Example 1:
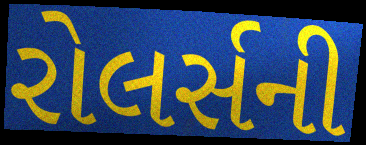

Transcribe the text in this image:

રોલર્સની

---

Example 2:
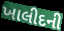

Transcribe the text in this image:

ખાલીદની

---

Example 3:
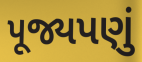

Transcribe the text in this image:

પૂજ્યપણું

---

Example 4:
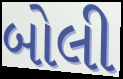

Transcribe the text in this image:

બોલી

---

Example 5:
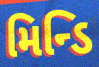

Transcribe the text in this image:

મિન્ડિ